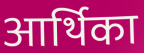
आर्थिका